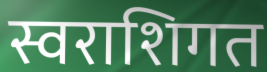
स्वराशिगत